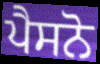
ਪੈਸਨੋ